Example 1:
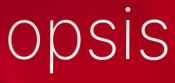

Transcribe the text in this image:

opsis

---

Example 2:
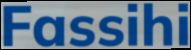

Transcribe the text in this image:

Fassihi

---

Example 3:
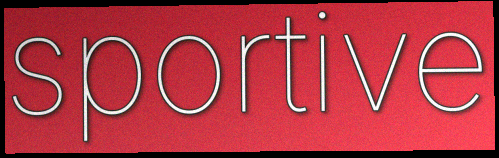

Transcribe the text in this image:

sportive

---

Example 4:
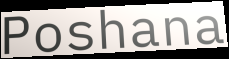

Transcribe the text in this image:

Poshana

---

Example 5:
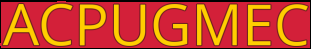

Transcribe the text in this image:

ACPUGMEC